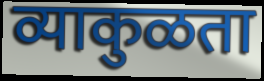
व्याकुळता